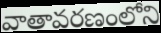
వాతావరణంలోని